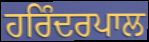
ਹਰਿੰਦਰਪਾਲ